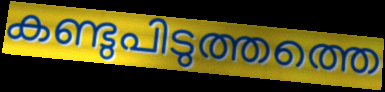
കണ്ടുപിടുത്തത്തെ